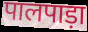
पालपाड़ा